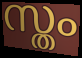
സ്തം